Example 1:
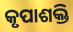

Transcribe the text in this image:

କୃପାଶକ୍ତି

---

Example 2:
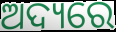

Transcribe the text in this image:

ଅଦ୍ୟରେ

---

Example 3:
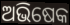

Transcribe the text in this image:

ଅଭିଷେକ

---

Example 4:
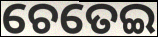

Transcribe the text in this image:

ଚେତେଇ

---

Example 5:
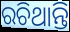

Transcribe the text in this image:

ରଚିଥାନ୍ତି